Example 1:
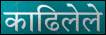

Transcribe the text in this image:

काढिलेले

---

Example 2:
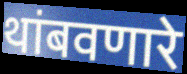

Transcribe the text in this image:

थांबवणारे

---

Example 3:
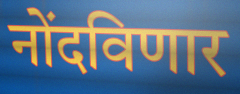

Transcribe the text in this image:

नोंदविणार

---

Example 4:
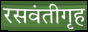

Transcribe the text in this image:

रसवंतीगृह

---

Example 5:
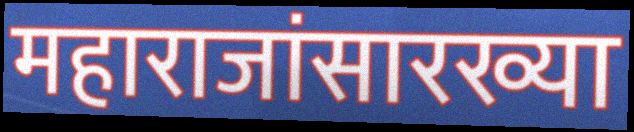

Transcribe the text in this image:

महाराजांसारख्या